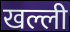
खल्ली